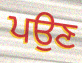
ਪਉਣ